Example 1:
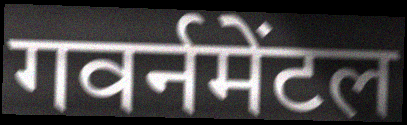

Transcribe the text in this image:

गवर्नमेंटल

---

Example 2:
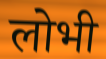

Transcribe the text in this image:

लोभी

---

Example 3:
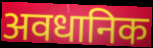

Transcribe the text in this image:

अवधानिक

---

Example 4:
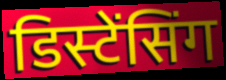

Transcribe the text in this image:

डिस्टेंसिंग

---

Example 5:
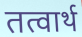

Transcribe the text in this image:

तत्वार्थ